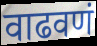
वाढवणं